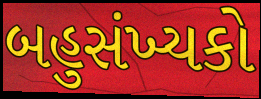
બહુસંખ્યકો